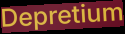
Depretium